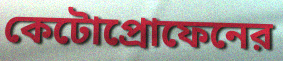
কেটোপ্রোফেনের